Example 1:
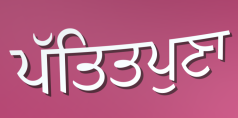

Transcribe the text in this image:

ਪੱਤਿਤਪੁਣਾ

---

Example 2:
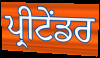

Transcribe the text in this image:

ਪ੍ਰੀਟੇਂਡਰ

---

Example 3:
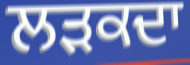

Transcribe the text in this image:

ਲੜਕਦਾ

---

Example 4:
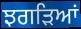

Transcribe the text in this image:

ਝਗੜਿਆਂ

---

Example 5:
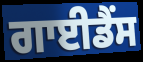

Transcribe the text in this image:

ਗਾਈਡੈਂਸ